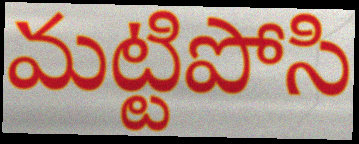
మట్టిపోసి